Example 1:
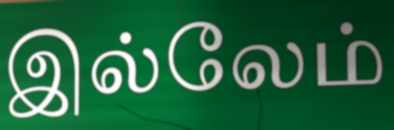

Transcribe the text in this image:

இல்லேம்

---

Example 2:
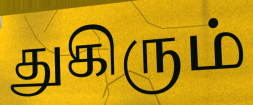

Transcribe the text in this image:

துகிரும்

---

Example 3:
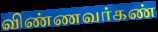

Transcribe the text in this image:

விண்ணவர்கண்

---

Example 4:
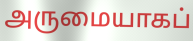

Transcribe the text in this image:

அருமையாகப்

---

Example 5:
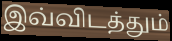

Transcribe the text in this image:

இவ்விடத்தும்